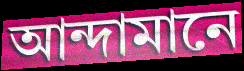
আন্দামানে